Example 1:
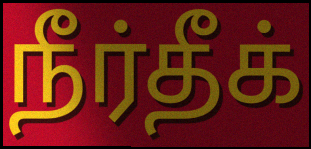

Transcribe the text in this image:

நீர்தீக்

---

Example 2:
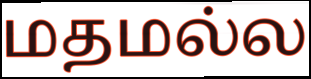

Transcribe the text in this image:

மதமல்ல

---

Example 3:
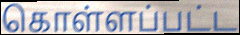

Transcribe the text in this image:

கொள்ளப்பட்ட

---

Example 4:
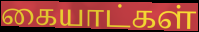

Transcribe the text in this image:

கையாட்கள்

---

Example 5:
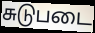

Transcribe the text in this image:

சுடுபடை